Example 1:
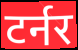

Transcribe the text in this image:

टर्नर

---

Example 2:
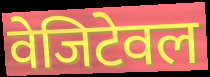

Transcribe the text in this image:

वेजिटेवल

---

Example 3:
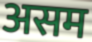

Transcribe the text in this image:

असम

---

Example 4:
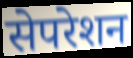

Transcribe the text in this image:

सेपरेशन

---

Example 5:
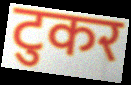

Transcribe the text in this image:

टुकर